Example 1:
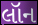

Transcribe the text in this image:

લૉન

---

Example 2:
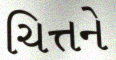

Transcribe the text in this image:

ચિત્તને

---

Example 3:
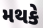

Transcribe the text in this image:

મથકે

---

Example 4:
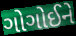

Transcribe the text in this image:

ગોગોઈને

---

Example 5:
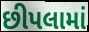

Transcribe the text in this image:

છીપલામાં